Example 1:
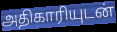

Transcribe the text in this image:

அதிகாரியுடன்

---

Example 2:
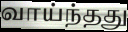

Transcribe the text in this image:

வாய்ந்தது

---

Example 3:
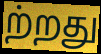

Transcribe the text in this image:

ற்றது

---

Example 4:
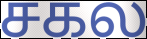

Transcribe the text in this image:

சகல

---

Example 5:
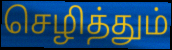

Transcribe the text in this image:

செழித்தும்